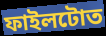
ফাইলটোত